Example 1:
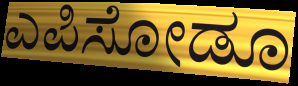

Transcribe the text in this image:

ಎಪಿಸೋಡೂ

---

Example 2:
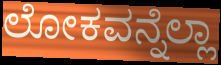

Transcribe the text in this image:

ಲೋಕವನ್ನೆಲ್ಲಾ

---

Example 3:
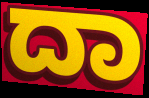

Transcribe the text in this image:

ದಾ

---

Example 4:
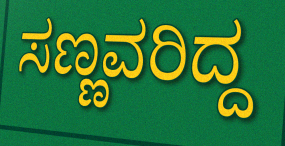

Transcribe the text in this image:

ಸಣ್ಣವರಿದ್ದ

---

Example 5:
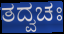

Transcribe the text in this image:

ತದ್ವಚಃ